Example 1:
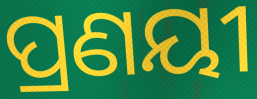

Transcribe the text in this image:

ପ୍ରଣୟୀ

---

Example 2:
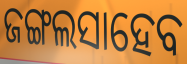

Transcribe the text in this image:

ଜଙ୍ଗଲସାହେବ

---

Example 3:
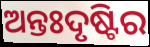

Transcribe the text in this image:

ଅନ୍ତଃଦୃଷ୍ଟିର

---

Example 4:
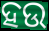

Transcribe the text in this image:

ହଉ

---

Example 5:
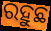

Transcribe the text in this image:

ରହୁଛ